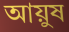
আয়ুষ